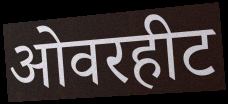
ओवरहीट